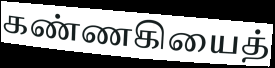
கண்ணகியைத்